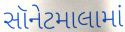
સૉનેટમાલામાં